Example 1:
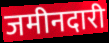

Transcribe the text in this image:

जमीनदारी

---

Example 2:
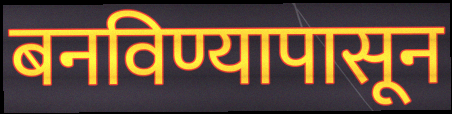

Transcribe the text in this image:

बनविण्यापासून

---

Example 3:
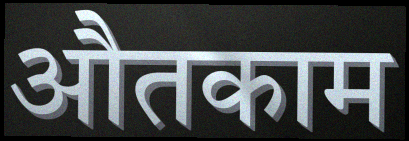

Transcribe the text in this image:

औतकाम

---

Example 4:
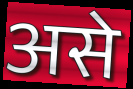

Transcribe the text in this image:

असे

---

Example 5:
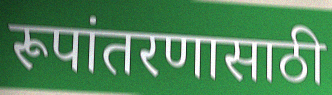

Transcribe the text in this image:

रूपांतरणासाठी